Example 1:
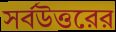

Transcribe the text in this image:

সর্বউত্তরের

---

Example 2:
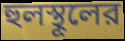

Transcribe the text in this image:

হুলস্থূলের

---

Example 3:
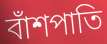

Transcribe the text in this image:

বাঁশপাতি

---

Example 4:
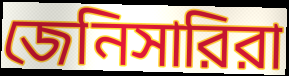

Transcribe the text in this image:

জেনিসারিরা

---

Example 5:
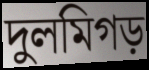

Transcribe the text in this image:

দুলমিগড়